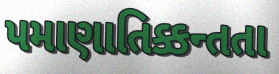
પમાણાતિક્કન્તતા